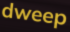
dweep